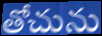
తోచును